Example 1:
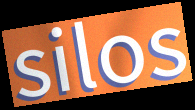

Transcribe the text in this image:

silos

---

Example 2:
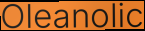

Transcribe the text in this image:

Oleanolic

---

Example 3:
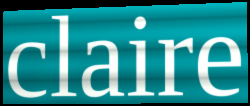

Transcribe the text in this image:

claire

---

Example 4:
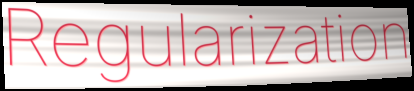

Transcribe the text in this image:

Regularization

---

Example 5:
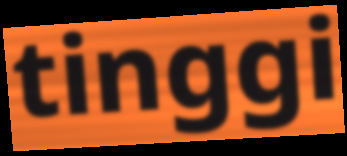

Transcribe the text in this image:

tinggi